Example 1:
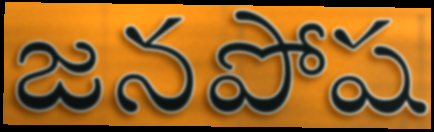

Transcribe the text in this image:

జనపోష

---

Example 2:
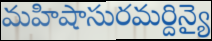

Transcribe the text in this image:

మహిషాసురమర్దిన్యై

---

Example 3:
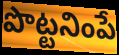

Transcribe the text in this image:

పొట్టనింపే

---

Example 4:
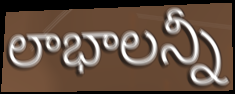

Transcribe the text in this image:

లాభాలన్నీ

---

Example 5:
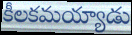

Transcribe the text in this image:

కీలకమయ్యాడు